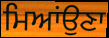
ਮਿਆਂਉਣਾ